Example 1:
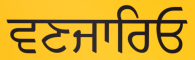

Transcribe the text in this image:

ਵਣਜਾਰਿਓ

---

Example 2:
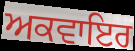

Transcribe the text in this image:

ਅਕਵਾਇਰ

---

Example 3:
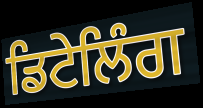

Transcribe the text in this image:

ਡਿਟੇਲਿੰਗ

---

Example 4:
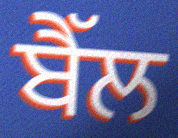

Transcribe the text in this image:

ਬੈੱਲ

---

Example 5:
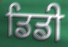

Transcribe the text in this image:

ਡਿਡੀ